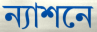
ন্যাশনে